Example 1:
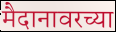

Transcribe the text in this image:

मैदानावरच्या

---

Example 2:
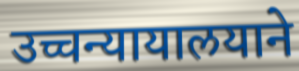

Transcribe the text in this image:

उच्चन्यायालयाने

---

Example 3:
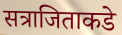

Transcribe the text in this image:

सत्राजिताकडे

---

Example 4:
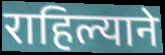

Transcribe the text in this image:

राहिल्याने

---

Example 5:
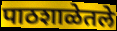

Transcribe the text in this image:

पाठशाळेतले